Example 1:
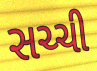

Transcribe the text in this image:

સચ્ચી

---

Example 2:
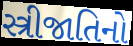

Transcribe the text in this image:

સ્ત્રીજાતિનો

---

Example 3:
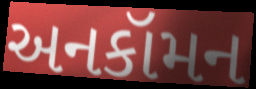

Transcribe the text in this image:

અનકૉમન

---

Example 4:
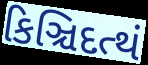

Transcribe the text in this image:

કિઞ્ચિદત્થં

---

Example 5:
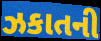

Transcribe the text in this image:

ઝકાતની